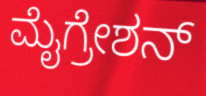
ಮೈಗ್ರೇಶನ್